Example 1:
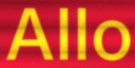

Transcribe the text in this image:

Allo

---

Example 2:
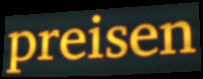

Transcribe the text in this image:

preisen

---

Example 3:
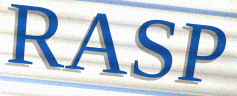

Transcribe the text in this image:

RASP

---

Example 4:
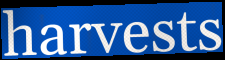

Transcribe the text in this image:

harvests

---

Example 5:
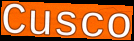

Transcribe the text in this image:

Cusco